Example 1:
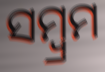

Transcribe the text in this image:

ସମ୍ବ୍ରମ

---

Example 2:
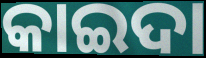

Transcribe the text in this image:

କାଇଦା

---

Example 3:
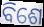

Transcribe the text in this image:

ବିଶେ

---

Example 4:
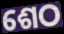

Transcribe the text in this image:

ଶେଠ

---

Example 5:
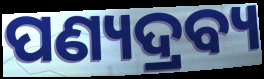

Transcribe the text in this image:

ପଣ୍ୟଦ୍ରବ୍ୟ